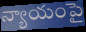
న్యాయంపై